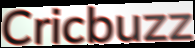
Cricbuzz